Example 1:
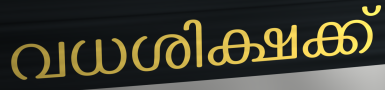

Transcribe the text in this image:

വധശിക്ഷക്ക്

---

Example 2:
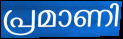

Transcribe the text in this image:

പ്രമാണി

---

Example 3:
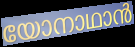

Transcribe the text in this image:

യോനാഥാൻ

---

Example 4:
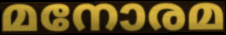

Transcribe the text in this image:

മനോരമ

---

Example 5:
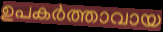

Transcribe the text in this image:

ഉപകർത്താവായ